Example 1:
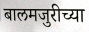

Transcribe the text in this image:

बालमजुरीच्या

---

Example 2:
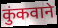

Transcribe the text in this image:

कुंकवाने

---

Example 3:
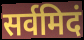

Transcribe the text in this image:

सर्वमिदं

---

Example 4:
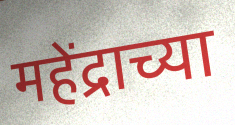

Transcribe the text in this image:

महेंद्राच्या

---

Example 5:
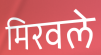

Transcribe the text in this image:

मिरवले